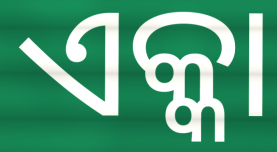
ଏକ୍କା